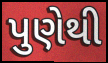
પુણેથી